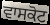
ਵਾਸਕੋਟ